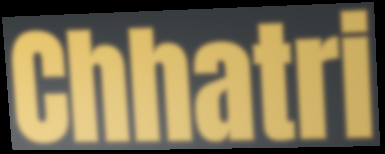
Chhatri